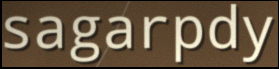
sagarpdy